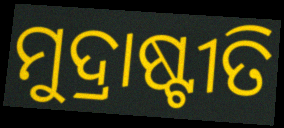
ମୁଦ୍ରାଷ୍ଟୀତି